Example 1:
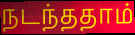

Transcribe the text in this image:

நடந்ததாம்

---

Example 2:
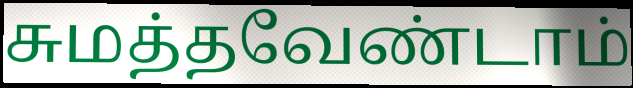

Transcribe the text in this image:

சுமத்தவேண்டாம்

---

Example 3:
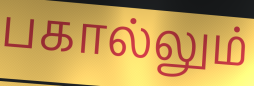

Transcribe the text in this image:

பகால்லும்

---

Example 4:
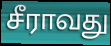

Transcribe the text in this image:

சீராவது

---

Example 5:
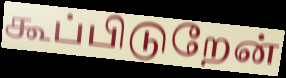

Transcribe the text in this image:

கூப்பிடுறேன்